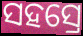
ସହସ୍ରେ